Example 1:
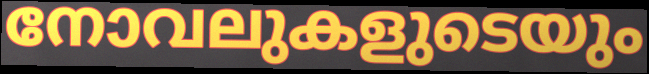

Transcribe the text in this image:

നോവലുകളുടെയും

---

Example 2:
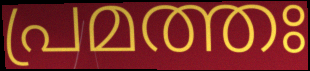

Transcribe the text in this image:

പ്രമത്തഃ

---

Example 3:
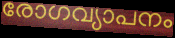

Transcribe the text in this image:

രോഗവ്യാപനം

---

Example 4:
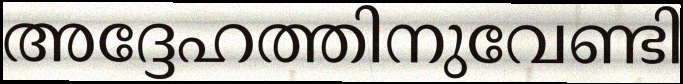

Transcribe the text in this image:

അദ്ദേഹത്തിനുവേണ്ടി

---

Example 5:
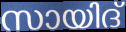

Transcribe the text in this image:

സായിദ്